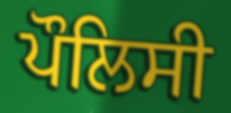
ਪੌਲਿਸੀ